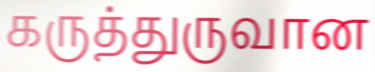
கருத்துருவான